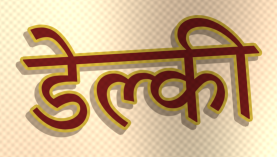
डेल्की